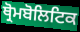
ਥ੍ਰੋਮਬੋਲਿਟਿਕ